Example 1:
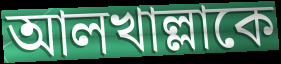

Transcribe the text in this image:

আলখাল্লাকে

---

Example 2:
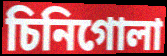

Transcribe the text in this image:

চিনিগোলা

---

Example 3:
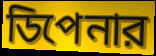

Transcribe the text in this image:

ডিপেনার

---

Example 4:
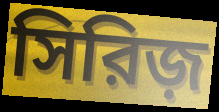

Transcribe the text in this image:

সিরিজ়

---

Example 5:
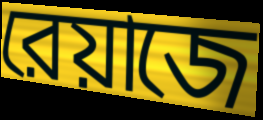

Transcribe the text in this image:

রেয়াজে